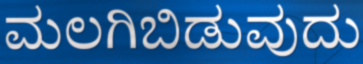
ಮಲಗಿಬಿಡುವುದು